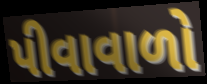
પીવાવાળો